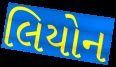
લિયોન